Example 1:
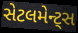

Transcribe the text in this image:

સેટલમેન્ટ્સ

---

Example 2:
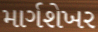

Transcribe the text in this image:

માર્ગશેખર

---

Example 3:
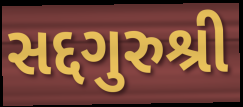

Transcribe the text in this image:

સદ્દગુરુશ્રી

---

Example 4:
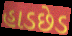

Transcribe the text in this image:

હાડછેડ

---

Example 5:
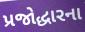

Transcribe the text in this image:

પ્રજોદ્ધારના